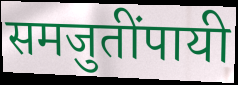
समजुतींपायी